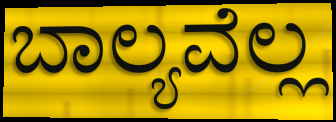
ಬಾಲ್ಯವೆಲ್ಲ